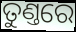
ତୁଣ୍ତରେ